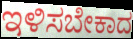
ಇಳಿಸಬೇಕಾದ